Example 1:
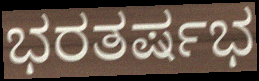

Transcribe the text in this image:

ಭರತರ್ಷಭ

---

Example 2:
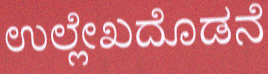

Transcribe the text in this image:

ಉಲ್ಲೇಖದೊಡನೆ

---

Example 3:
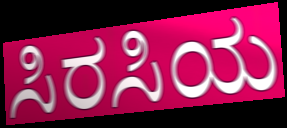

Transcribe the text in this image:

ಸಿರಸಿಯ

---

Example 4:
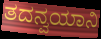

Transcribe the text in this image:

ತದನ್ವಯಾನಿ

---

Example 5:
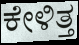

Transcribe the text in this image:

ಕೇಳಿತ್ತ